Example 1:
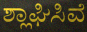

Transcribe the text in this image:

ಶ್ಲಾಘಿಸಿವೆ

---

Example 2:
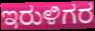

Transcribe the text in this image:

ಇರುಳಿಗರ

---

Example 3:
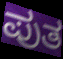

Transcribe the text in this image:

ಪುತ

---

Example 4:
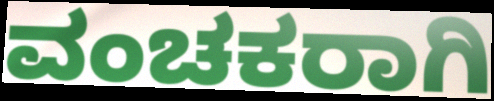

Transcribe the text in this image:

ವಂಚಕರಾಗಿ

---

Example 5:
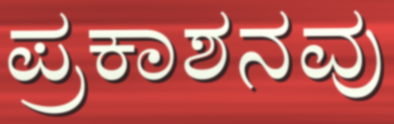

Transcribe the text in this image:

ಪ್ರಕಾಶನವು